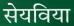
सेयविया